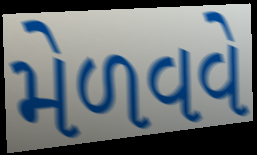
મેળવવે